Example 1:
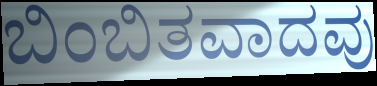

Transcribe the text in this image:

ಬಿಂಬಿತವಾದವು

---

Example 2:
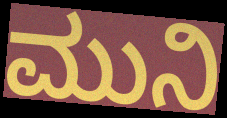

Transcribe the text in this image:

ಮುನಿ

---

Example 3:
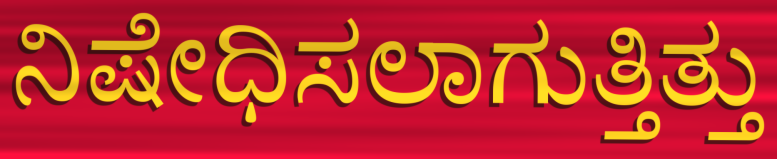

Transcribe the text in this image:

ನಿಷೇಧಿಸಲಾಗುತ್ತಿತ್ತು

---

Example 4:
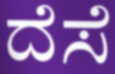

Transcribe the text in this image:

ದೆಸೆ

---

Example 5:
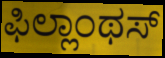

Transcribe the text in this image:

ಫಿಲ್ಲಾಂಥಸ್